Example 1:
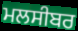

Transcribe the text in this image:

ਮਲਸੀਬਰ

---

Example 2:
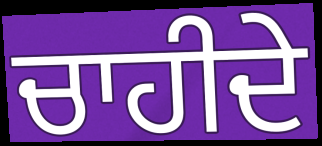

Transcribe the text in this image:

ਚਾਹੀਦੇ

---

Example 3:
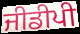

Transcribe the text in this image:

ਜੀਡੀਪੀ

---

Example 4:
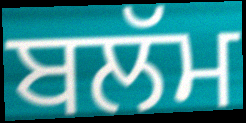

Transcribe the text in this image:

ਬਲੱਮ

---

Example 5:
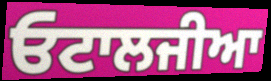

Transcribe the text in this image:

ਓਟਾਲਜੀਆ